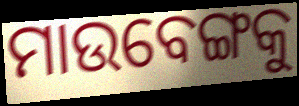
ମାଉବେଙ୍ଗକୁ